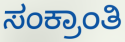
ಸಂಕ್ರಾಂತಿ